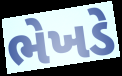
ભેખડે